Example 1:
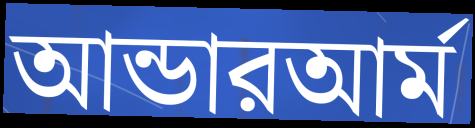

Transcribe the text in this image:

আন্ডারআর্ম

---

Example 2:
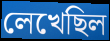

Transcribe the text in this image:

লেখেছিল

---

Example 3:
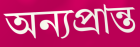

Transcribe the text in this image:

অন্যপ্রান্ত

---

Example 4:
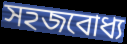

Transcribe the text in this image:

সহজবোধ্য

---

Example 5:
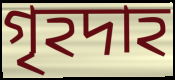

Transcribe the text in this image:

গৃহদাহ